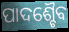
ପାଦଶ୍ଚୈବ